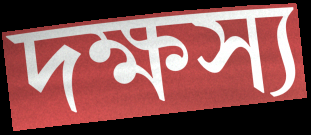
দক্ষস্য